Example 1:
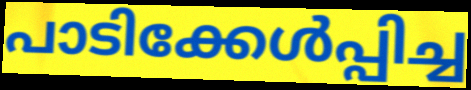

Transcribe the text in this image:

പാടിക്കേൾപ്പിച്ച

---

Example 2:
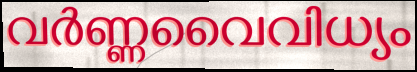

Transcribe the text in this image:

വർണ്ണവൈവിധ്യം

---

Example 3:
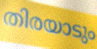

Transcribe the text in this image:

തിരയാടും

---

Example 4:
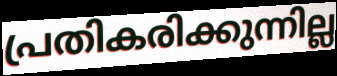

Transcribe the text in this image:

പ്രതികരിക്കുന്നില്ല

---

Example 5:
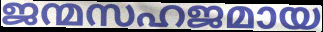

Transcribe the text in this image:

ജന്മസഹജമായ